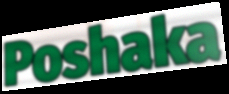
Poshaka